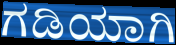
ಗಡಿಯಾಗಿ